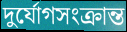
দুর্যোগসংক্রান্ত